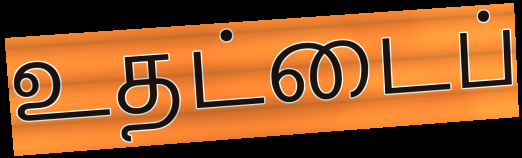
உதட்டைப்